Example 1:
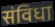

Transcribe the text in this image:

संविधा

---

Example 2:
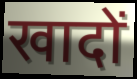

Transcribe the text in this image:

खादों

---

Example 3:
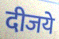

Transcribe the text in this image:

दीजये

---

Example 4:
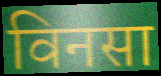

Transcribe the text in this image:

विनसा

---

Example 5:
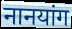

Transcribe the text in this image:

नानयांग